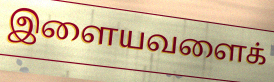
இளையவளைக்